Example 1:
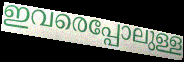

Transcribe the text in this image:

ഇവരെപ്പോലുള്ള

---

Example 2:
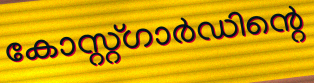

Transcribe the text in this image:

കോസ്റ്റ്ഗാർഡിന്റെ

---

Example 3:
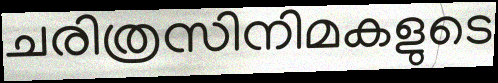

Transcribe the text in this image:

ചരിത്രസിനിമകളുടെ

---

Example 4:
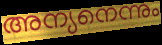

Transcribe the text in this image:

അന്യനെന്നും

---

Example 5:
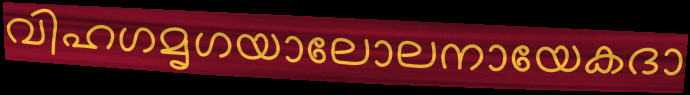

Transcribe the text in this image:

വിഹഗമൃഗയാലോലനായേകദാ